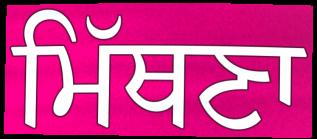
ਮਿੱਥਣਾ